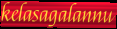
kelasagalannu